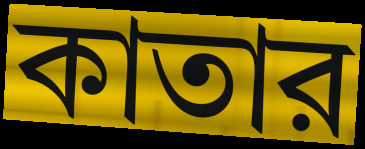
কাতার